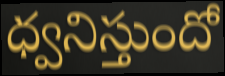
ధ్వనిస్తుందో